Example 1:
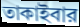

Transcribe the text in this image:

তাকাইবার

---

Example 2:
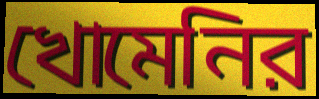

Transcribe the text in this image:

খোমেনির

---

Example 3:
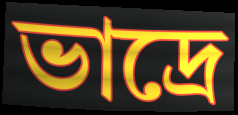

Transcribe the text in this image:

ভাদ্রে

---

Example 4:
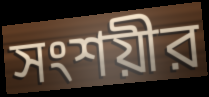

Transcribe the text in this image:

সংশয়ীর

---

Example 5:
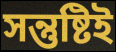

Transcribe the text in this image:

সন্তুষ্টিই